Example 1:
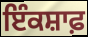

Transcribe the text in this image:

ਇੰਕਸ਼ਾਫ਼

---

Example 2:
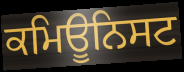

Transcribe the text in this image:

ਕਮਿਊਨਿਸਟ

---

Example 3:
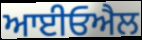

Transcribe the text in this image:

ਆਈਓਐਲ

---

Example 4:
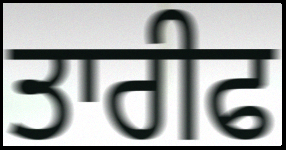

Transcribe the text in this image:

ਤਾਰੀਫ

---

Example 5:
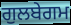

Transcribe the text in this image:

ਗੁਲਬੇਗਮ